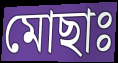
মোছাঃ